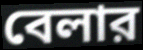
বেলার